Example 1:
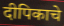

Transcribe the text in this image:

दीपिकाचे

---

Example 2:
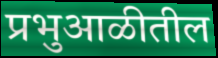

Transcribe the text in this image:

प्रभुआळीतील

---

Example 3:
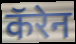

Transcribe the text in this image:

कॅरेन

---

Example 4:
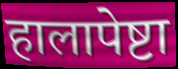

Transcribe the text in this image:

हालापेष्टा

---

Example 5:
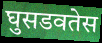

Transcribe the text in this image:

घुसडवतेस